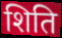
शिति